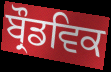
ਬ੍ਰੌਡਵਿਕ